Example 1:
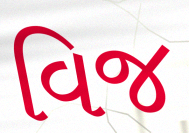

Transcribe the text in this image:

વિજ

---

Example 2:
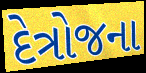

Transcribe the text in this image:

દેત્રોજના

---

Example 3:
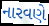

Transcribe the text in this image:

નારવણે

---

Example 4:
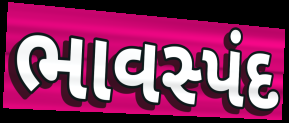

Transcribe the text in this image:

ભાવસ્પંદ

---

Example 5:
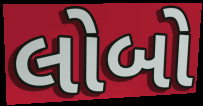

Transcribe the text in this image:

લોબો